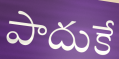
పాదుకే